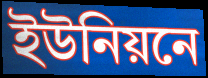
ইউনিয়নে